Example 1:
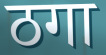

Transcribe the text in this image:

ठगा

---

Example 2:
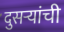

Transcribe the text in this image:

दुसऱ्यांची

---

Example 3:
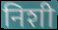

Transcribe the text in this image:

निशी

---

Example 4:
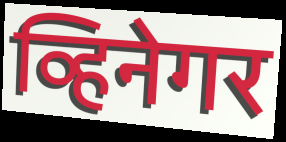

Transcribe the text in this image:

व्हिनेगर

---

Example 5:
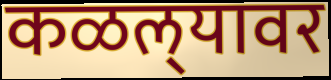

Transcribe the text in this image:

कळल्यावर